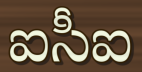
ఐసీఐ